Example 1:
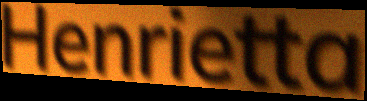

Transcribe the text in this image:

Henrietta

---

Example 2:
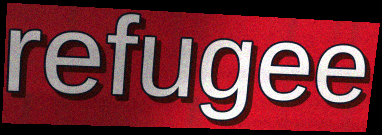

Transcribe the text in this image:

refugee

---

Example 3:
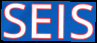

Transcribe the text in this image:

SEIS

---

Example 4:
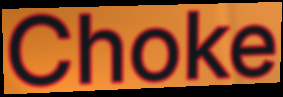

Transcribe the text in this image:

Choke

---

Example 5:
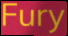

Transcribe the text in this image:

Fury